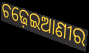
ଚଢ଼େଇଆଣୀର